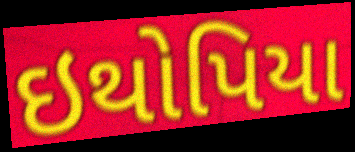
ઇથોપિયા